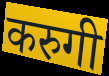
करुगी